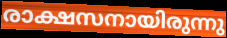
രാക്ഷസനായിരുന്നു